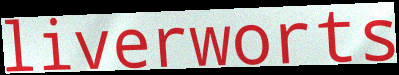
liverworts